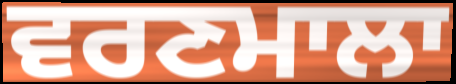
ਵਰਣਮਾਲਾ